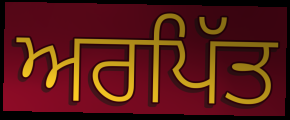
ਅਰਪਿੱਤ